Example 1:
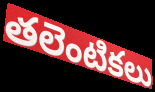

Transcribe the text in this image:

తలెంటికలు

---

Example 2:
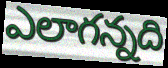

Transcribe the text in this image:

ఎలాగన్నది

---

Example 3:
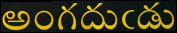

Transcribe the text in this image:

అంగదుఁడు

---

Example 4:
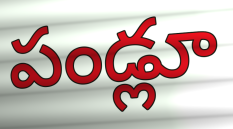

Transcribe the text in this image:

పండ్లూ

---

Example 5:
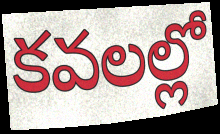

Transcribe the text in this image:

కవలల్లో